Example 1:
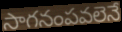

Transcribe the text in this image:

సాగనంపవలెనే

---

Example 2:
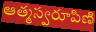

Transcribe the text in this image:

ఆత్మస్వరూపిణి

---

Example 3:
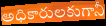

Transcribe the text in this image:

అధికారులకుగానీ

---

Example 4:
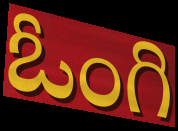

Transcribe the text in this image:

ఓంగి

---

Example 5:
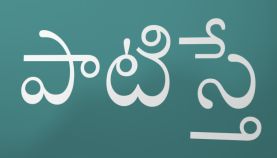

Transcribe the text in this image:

పాటిస్తే